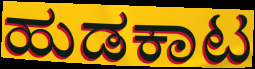
ಹುಡಕಾಟ